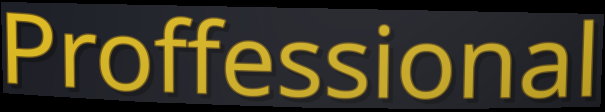
Proffessional